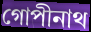
গোপীনাথ